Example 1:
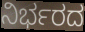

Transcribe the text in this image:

ನಿರ್ಭರದ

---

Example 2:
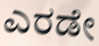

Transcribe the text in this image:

ಎರಡೇ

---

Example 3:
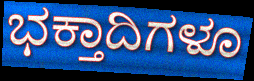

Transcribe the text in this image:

ಭಕ್ತಾದಿಗಳೂ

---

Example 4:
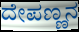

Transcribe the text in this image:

ದೇಪಣ್ಣನ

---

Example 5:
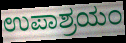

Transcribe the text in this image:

ಉಪಾಶ್ರಯಂ